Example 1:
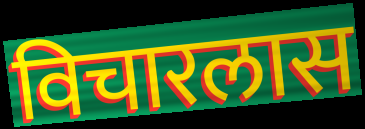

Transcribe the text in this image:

विचारलास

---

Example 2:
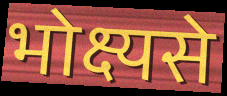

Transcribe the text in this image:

भोक्ष्यसे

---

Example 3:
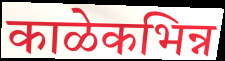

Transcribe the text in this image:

काळेकभिन्न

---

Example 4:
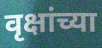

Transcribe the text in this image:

वृक्षांच्या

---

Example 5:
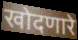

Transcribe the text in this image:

खोदणारे